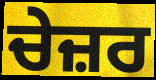
ਚੇਜ਼ਰ